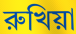
রুখিয়া